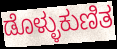
ಡೊಳ್ಳುಕುಣಿತ